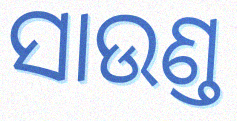
ସାଉଣ୍ଡ